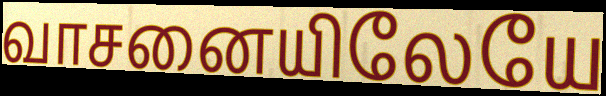
வாசனையிலேயே